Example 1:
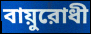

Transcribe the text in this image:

বায়ুরোধী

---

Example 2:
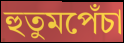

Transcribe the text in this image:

হুতুমপেঁচা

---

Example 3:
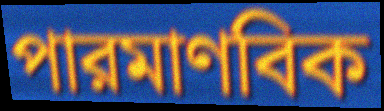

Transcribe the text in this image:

পারমাণবিক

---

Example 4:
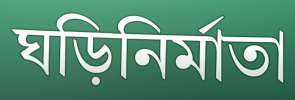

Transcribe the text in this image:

ঘড়িনির্মাতা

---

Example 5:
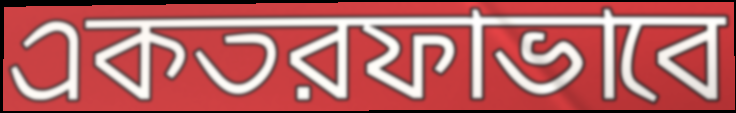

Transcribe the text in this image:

একতরফাভাবে